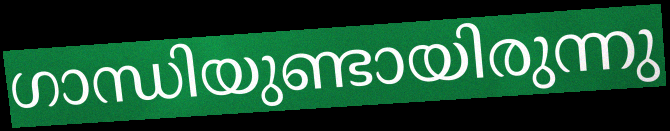
ഗാന്ധിയുണ്ടായിരുന്നു